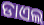
ଡାଏଲ